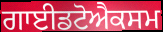
ਗਾਈਡਟੋਐਕਸਮ